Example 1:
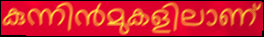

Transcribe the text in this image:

കുന്നിൻമുകളിലാണ്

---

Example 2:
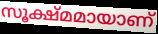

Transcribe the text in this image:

സൂക്ഷ്മമായാണ്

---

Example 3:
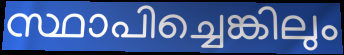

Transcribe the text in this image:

സ്ഥാപിച്ചെങ്കിലും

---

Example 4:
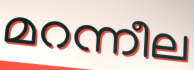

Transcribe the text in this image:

മറന്നീല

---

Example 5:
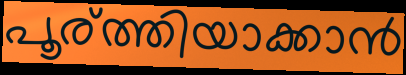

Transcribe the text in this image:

പൂര്ത്തിയാക്കാൻ